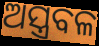
ଅସ୍ତ୍ରବଳ